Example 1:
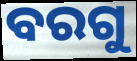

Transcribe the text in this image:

ବରଗୁ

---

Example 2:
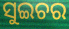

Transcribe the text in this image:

ସୁଇଚର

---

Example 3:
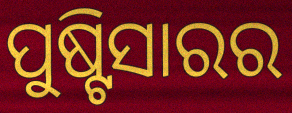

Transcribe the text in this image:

ପୁଷ୍ଟିସାରର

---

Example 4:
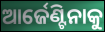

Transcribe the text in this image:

ଆର୍ଜେଣ୍ଟିନାକୁ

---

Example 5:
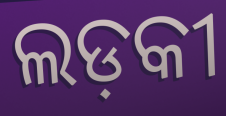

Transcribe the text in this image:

ଲଡ଼କୀ